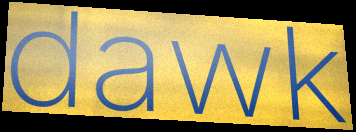
dawk